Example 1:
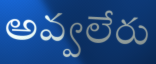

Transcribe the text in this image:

అవ్వలేరు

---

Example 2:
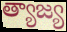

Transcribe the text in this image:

త్యాజ్య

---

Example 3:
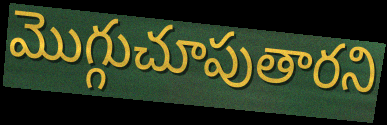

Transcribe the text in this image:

మొగ్గుచూపుతారని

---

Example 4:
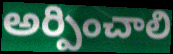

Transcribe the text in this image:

అర్పించాలి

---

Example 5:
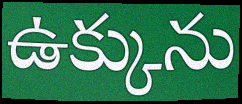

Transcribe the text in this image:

ఉక్కును